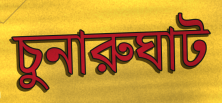
চুনারুঘাট